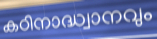
കഠിനാദ്ധ്വാനവും